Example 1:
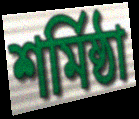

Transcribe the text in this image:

শৰ্মিষ্ঠা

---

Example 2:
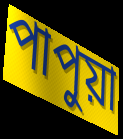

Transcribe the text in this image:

পাপুয়া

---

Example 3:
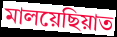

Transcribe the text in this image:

মালয়েছিয়াত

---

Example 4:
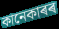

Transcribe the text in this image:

কানেকাৰৰ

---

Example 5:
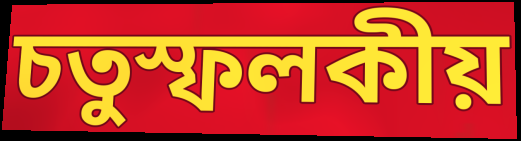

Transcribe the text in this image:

চতুস্ফলকীয়